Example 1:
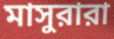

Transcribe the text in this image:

মাসুরারা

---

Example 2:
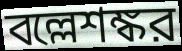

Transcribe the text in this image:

বল্লেশঙ্কর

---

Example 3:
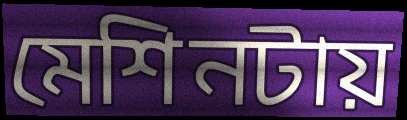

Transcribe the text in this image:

মেশিনটায়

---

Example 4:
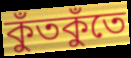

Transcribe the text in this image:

কুঁতকুঁতে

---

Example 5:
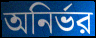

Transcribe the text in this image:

অনির্ভর